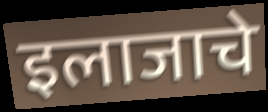
इलाजाचे